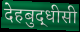
देहबुद्धीसी